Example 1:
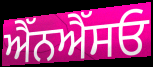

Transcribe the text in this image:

ਐੱਨਐੱਸਓ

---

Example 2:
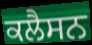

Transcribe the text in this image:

ਕਲੈਸਨ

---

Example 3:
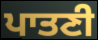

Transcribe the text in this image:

ਪਾਤਣੀ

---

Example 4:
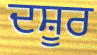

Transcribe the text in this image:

ਦਸ਼ੂਰ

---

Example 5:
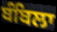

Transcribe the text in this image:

ਬੰਬਿਲਾ